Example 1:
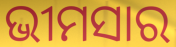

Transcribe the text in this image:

ଭୀମସାର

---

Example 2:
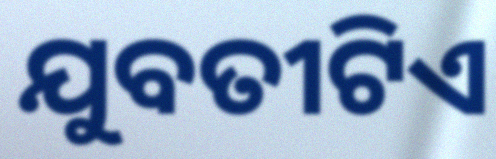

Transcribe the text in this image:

ଯୁବତୀଟିଏ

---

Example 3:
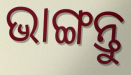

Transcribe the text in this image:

ଭାଙ୍ଗନ୍ତୁ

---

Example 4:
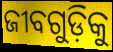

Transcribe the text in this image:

ଜୀବଗୁଡ଼ିକୁ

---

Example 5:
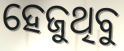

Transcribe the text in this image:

ହେଜୁଥିବୁ